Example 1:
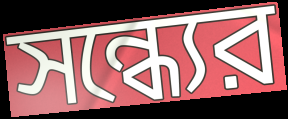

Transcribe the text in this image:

সন্ধ্যের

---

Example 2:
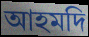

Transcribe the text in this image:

আহমদি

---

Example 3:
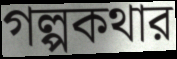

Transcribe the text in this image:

গল্পকথার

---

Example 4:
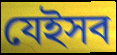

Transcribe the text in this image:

যেইসব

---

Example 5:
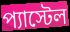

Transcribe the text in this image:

প্যাস্টেল